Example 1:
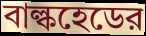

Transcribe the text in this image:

বাল্কহেডের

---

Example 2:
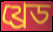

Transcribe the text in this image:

থ্রেড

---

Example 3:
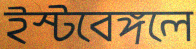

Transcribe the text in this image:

ইস্টবেঙ্গলে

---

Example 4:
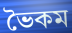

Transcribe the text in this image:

ভৈকম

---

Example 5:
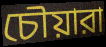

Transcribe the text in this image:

চৌয়ারা